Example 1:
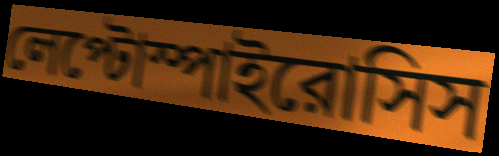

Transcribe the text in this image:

লেপ্টোস্পাইরোসিস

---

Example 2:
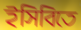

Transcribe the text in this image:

ইসিবিতে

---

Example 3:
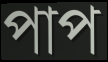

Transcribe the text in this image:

পাপ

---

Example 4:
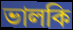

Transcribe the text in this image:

ভালকি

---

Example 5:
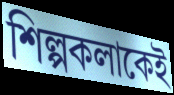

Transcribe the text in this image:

শিল্পকলাকেই